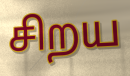
சிறய